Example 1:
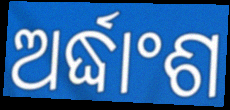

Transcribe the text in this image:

ଅର୍ଦ୍ଧାଂଶ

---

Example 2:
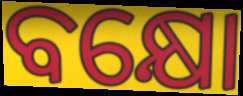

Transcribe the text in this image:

ବକ୍ଷୋ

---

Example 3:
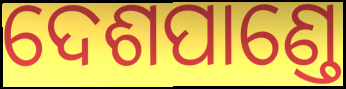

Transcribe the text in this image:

ଦେଶପାଣ୍ଡେ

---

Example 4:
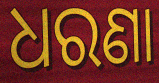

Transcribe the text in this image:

ଧରଣା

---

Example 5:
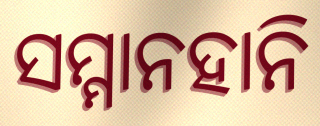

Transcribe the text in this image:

ସମ୍ମାନହାନି